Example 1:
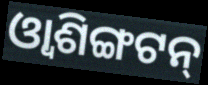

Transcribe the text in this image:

ଓ୍ୱାଶିଙ୍ଗଟନ୍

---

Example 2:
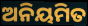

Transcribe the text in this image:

ଅନିୟମିତ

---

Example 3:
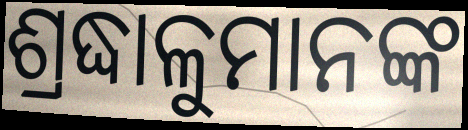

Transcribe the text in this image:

ଶ୍ରଦ୍ଧାଳୁମାନଙ୍କ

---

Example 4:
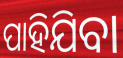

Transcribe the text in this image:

ପାହିଯିବା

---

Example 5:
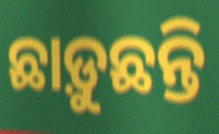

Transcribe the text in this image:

ଛାଡ଼ୁଛନ୍ତି